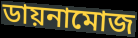
ডায়নামোজ